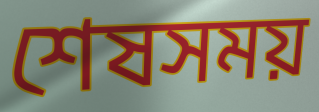
শেষসময়